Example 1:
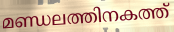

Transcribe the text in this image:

മണ്ഡലത്തിനകത്ത്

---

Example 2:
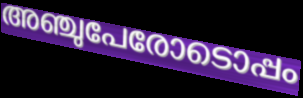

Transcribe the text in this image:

അഞ്ചുപേരോടൊപ്പം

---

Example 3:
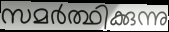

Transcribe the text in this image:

സമർത്ഥിക്കുന്നു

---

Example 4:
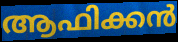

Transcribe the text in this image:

ആഫിക്കൻ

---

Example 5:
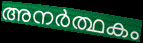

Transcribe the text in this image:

അനർത്ഥകം